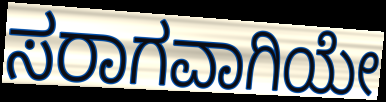
ಸರಾಗವಾಗಿಯೇ